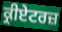
ਕ੍ਰੀਏਟਰਜ਼